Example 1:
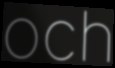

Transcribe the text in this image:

och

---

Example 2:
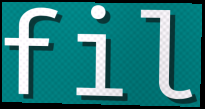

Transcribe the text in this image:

fil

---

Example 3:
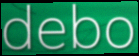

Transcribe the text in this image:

debo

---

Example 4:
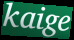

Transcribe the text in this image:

kaige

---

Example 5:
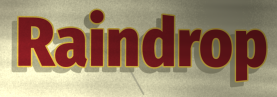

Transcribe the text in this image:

Raindrop